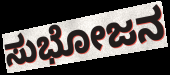
ಸುಭೋಜನ